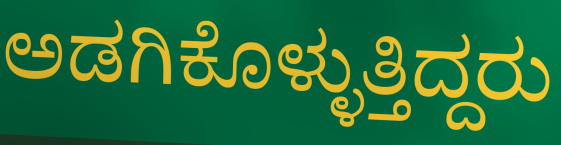
ಅಡಗಿಕೊಳ್ಳುತ್ತಿದ್ದರು